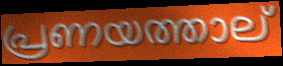
പ്രണയത്താല്